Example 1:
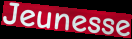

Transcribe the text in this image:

Jeunesse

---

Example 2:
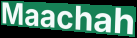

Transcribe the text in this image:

Maachah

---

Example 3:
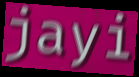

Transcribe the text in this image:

jayi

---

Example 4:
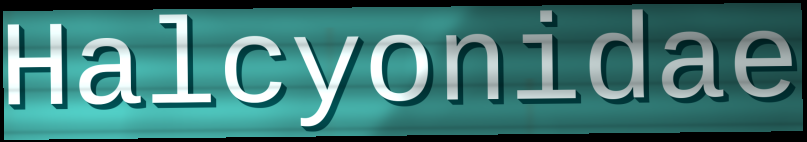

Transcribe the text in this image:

Halcyonidae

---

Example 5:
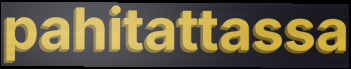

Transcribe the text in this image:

pahitattassa